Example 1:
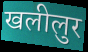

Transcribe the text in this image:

खलीलुर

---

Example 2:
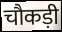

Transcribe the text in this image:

चौकड़ी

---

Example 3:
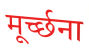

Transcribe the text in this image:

मूर्च्छना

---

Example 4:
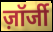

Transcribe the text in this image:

ज़ॉर्जी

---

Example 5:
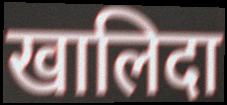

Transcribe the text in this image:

खालिदा